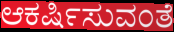
ಆಕರ್ಷಿಸುವಂತೆ